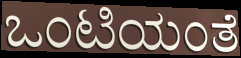
ಒಂಟಿಯಂತೆ